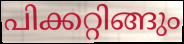
പിക്കറ്റിങ്ങും